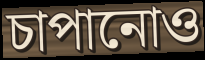
চাপানোও